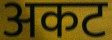
अकट